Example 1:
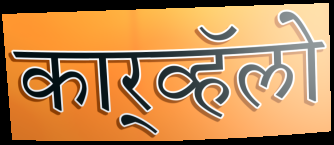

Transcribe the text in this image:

कार्व्हॅलो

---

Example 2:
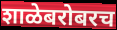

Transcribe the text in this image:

शाळेबरोबरच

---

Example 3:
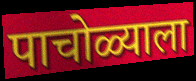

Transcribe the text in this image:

पाचोळ्याला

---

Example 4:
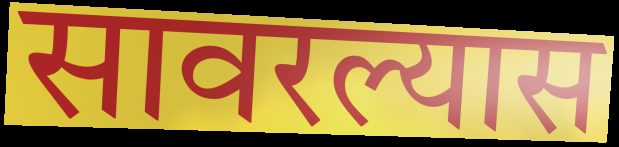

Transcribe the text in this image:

सावरल्यास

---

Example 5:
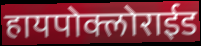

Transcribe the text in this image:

हायपोक्लोराईड